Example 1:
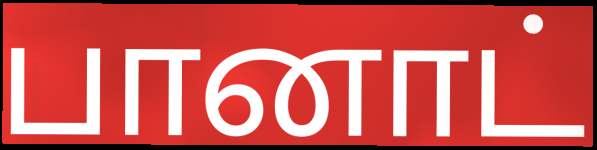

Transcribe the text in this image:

பானாட்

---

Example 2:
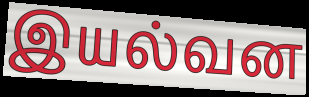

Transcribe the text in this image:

இயல்வன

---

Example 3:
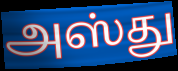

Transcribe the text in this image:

அஸ்து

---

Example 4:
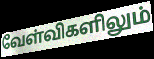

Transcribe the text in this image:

வேள்விகளிலும்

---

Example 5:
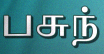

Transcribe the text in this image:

பசுந்